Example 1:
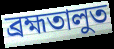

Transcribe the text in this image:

ব্ৰহ্মতালুত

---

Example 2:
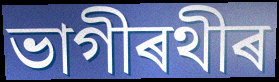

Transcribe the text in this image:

ভাগীৰথীৰ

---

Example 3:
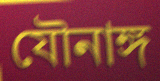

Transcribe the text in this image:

যৌনাঙ্গ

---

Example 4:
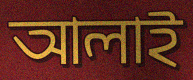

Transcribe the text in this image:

আলাই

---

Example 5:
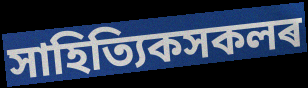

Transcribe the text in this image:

সাহিত্যিকসকলৰ